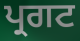
ਪ੍ਰਗਟ